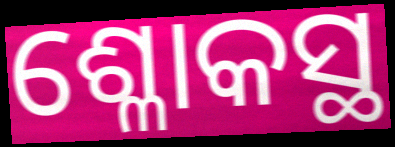
ଶ୍ଳୋକସ୍ଥ